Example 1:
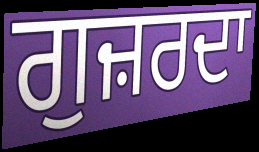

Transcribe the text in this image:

ਗੁਜ਼ਰਦਾ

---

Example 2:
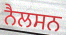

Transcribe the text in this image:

ਨੈਲਸਨ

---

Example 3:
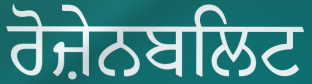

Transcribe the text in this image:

ਰੋਜ਼ੇਨਬਲਿਟ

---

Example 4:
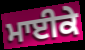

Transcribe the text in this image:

ਮਾਈਕੇ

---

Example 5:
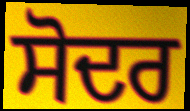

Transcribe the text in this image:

ਸੋਦਰ